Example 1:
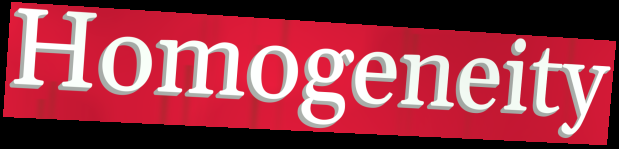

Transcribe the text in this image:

Homogeneity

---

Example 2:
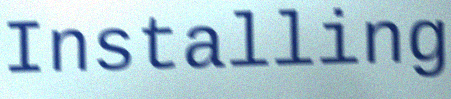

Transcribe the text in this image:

Installing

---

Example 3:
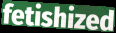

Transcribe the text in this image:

fetishized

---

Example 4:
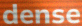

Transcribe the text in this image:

dense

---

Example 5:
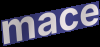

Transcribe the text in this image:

mace